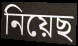
নিয়েছ